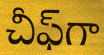
చీఫ్‌గా